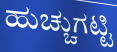
ಹುಚ್ಚುಗಟ್ಟಿ